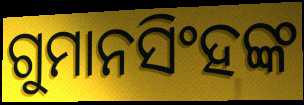
ଗୁମାନସିଂହଙ୍କ